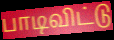
பாடிவிட்டு